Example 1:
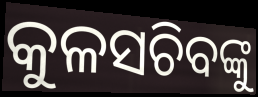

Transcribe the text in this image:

କୁଳସଚିବଙ୍କୁ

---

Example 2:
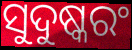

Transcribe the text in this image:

ସୁଦୁଷ୍କରଂ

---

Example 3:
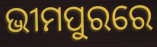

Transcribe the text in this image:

ଭୀମପୁରରେ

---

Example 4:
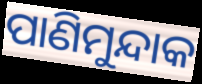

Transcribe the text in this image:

ପାଣିମୁନ୍ଦାକ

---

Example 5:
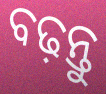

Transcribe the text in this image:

ବଢ଼ନ୍ତୁ